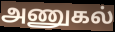
அணுகல்